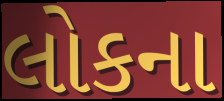
લોકના